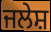
ਜਲੇਸ਼